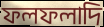
ফলফলাদি